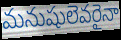
మనుషులెవరైనా